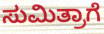
ಸುಮಿತ್ರಾಗೆ